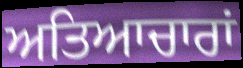
ਅਤਿਆਚਾਰਾਂ